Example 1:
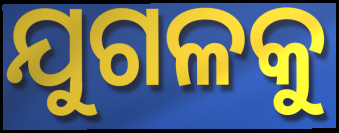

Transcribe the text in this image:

ଯୁଗଳକୁ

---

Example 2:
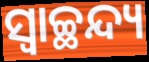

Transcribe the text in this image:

ସ୍ୱାଚ୍ଛନ୍ଦ୍ୟ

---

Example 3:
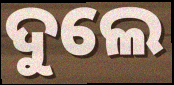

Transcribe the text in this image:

ଦୁଲେ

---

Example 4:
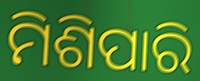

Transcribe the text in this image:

ମିଶିପାରି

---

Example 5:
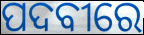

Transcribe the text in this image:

ପଦବୀରେ